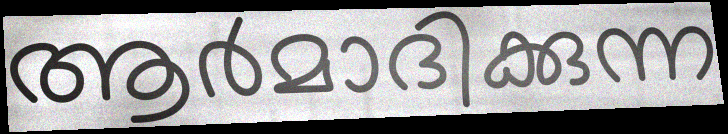
ആർമാദിക്കുന്ന